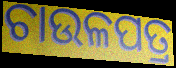
ଚାଉଳପତ୍ର